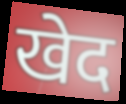
खेद